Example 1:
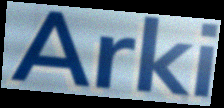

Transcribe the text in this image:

Arki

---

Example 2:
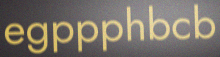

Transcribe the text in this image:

egppphbcb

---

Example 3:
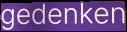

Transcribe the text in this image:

gedenken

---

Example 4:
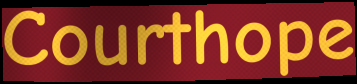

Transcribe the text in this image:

Courthope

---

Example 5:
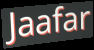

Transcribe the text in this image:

Jaafar